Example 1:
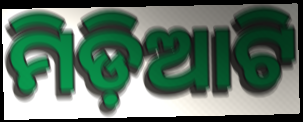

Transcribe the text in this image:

ମିଡ଼ିଆଟି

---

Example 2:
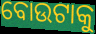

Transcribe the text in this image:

ବୋଉଟାକୁ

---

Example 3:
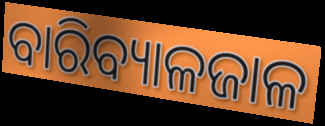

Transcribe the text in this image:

ବାରିବ୍ୟାଳଜାଳ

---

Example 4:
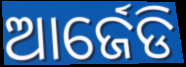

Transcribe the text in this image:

ଆର୍ଜେଡି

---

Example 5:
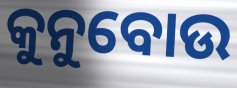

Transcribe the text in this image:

କୁନୁବୋଉ